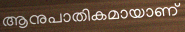
ആനുപാതികമായാണ്